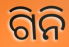
ଗିନି